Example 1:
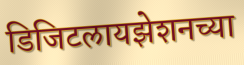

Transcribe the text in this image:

डिजिटलायझेशनच्या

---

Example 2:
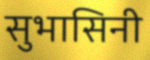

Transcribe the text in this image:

सुभासिनी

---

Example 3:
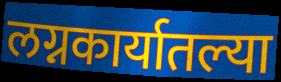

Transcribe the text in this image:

लग्नकार्यातल्या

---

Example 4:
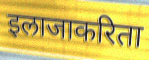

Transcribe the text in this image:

इलाजाकरिता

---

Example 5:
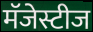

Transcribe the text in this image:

मॅजेस्टीज